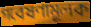
গবেষণামূলক